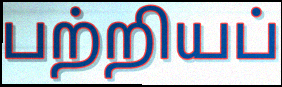
பற்றியப்